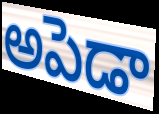
అపెడా